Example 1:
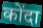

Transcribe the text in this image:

कोंदा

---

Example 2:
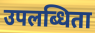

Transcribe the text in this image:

उपलब्धिता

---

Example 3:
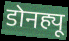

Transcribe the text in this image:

डोनह्यू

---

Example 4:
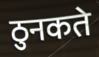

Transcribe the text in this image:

ठुनकते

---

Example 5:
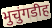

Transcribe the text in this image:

भुचुंगडीह